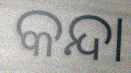
କନ୍ଦା